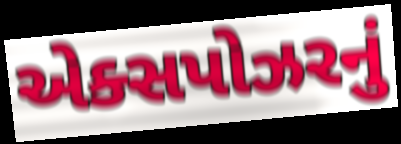
એક્સપોઝરનું